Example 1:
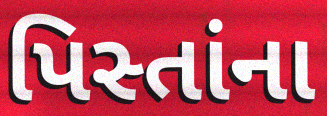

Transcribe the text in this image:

પિસ્તાંના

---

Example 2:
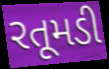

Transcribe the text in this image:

રતૂમડી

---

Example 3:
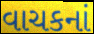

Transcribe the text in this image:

વાચકનાં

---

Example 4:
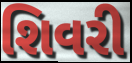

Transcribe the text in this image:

શિવરી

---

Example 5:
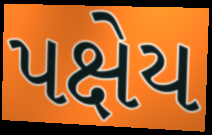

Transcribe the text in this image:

પક્ષેય